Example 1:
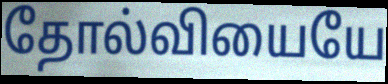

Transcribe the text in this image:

தோல்வியையே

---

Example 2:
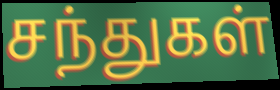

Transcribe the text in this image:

சந்துகள்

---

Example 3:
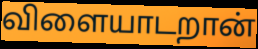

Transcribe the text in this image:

விளையாடறான்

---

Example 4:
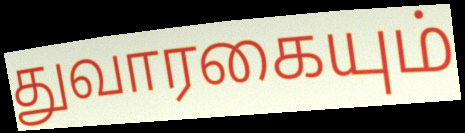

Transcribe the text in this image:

துவாரகையும்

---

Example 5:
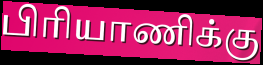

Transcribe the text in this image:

பிரியாணிக்கு